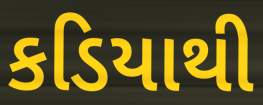
કડિયાથી